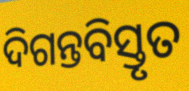
ଦିଗନ୍ତବିସ୍ତୃତ